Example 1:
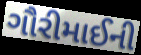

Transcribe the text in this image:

ગૌરીમાઈની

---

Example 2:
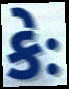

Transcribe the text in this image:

કેઃ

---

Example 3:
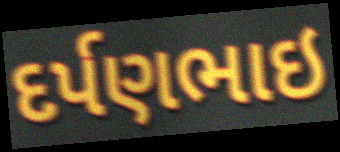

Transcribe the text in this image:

દર્પણભાઇ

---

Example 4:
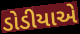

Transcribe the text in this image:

ડોડીયાએ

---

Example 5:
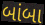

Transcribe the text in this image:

બાંબા